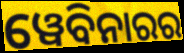
ୱେବିନାରର